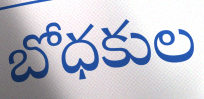
బోధకుల